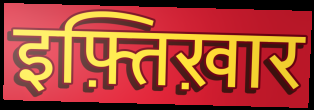
इफ़्तिख़ार